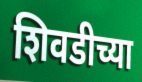
शिवडीच्या